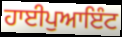
ਹਾਈਪੁਆਇੰਟ